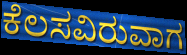
ಕೆಲಸವಿರುವಾಗ